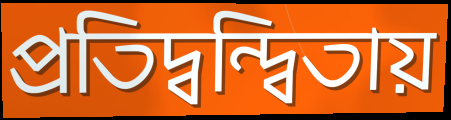
প্রতিদ্বন্দ্বিতায়